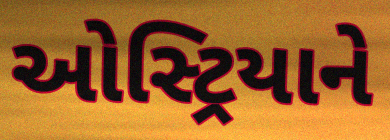
ઓસ્ટ્રિયાને